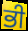
ਭੀ